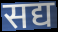
सद्य